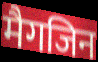
मैगजिन